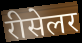
रीसेलर